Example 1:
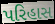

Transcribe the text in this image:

પરિહાસ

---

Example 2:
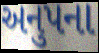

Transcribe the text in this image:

અનુપના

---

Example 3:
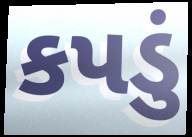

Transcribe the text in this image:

કપડું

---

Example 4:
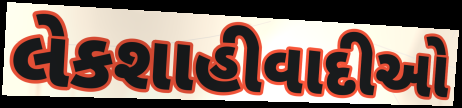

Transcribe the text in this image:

લેકશાહીવાદીઓ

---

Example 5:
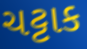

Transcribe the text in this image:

ચટ્ટાક